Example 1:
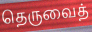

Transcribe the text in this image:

தெருவைத்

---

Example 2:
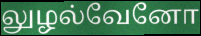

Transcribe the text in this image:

லுழல்வேனோ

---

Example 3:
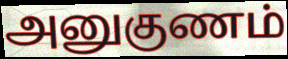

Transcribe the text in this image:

அனுகுணம்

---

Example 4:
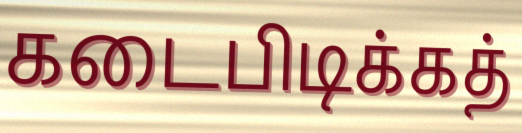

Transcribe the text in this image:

கடைபிடிக்கத்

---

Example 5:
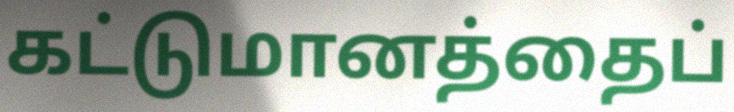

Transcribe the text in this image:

கட்டுமானத்தைப்